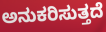
ಅನುಕರಿಸುತ್ತದೆ